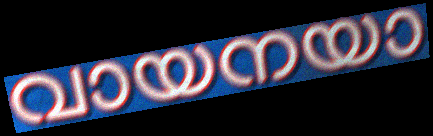
വായനയാ